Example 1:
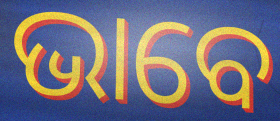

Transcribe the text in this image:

ଭାବେ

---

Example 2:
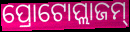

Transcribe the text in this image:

ପ୍ରୋଟୋପ୍ଲାଜମ୍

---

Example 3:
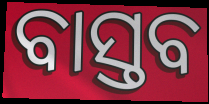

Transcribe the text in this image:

ବାସ୍ତବ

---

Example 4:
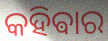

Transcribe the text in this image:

କହିଵାର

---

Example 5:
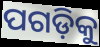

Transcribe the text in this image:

ପଗଡ଼ିକୁ